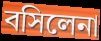
বসিলেনা